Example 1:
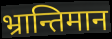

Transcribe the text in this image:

भ्रान्तिमान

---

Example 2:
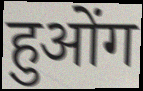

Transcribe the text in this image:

हुओंग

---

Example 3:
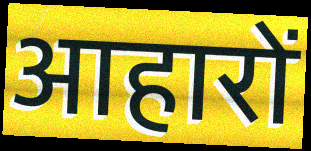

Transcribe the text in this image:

आहारों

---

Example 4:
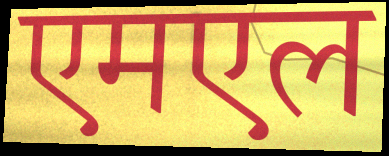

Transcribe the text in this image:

एमएल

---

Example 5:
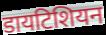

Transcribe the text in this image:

डायटिशियन